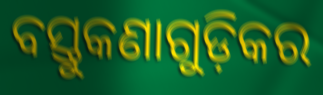
ବସ୍ତୁକଣାଗୁଡ଼ିକର